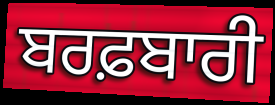
ਬਰਫ਼ਬਾਰੀ